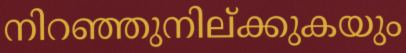
നിറഞ്ഞുനില്ക്കുകയും